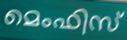
മെംഫിസ്